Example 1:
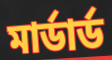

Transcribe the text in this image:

মার্ডার্ড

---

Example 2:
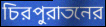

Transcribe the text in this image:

চিরপুরাতনের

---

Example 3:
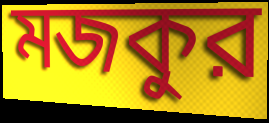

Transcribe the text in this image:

মজকুর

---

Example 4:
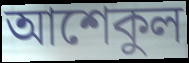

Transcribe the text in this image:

আশেকুল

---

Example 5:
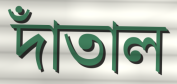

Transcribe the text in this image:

দাঁতাল